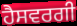
ਹੈਸਵਰਗੀ